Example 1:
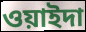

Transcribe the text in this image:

ওয়াইদা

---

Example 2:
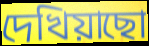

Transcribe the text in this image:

দেখিয়াছো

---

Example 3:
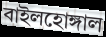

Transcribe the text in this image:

বাইলহোঙ্গাল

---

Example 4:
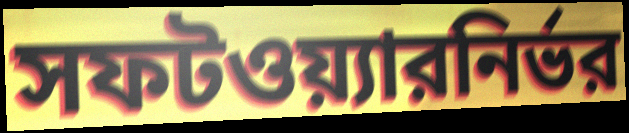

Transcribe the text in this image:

সফটওয়্যারনির্ভর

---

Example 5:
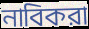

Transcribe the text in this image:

নাবিকরা